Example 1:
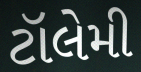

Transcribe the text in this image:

ટૉલેમી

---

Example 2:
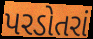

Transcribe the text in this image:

પરડોતરાં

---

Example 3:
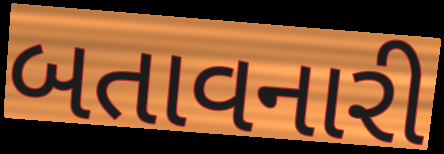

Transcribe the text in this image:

બતાવનારી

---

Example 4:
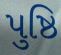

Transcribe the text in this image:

પુષ્ઠિ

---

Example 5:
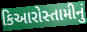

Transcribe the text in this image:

કિઆરોસ્તામીનું